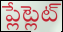
ప్లేట్లెట్